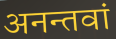
अनन्तवां